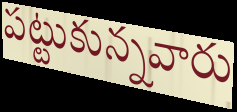
పట్టుకున్నవారు